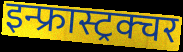
इन्फ्रास्ट्रक्‍चर